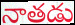
నాతడు